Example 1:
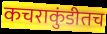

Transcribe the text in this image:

कचराकुंडीतच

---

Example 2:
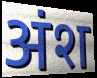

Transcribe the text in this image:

अंश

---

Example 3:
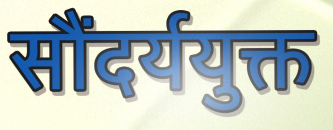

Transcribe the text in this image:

सौंदर्ययुक्त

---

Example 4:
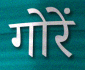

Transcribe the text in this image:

गोरें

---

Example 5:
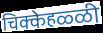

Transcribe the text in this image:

चिक्केहळ्ळी